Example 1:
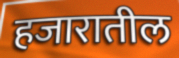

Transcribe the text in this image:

हजारातील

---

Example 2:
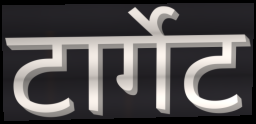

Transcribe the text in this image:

टार्गेट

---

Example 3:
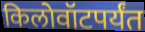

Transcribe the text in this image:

किलोवॉटपर्यंत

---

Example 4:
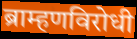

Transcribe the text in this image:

ब्राम्हणविरोधी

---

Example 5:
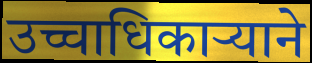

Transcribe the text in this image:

उच्चाधिकाऱ्याने